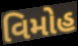
વિમોહ